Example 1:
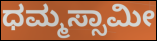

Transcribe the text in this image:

ಧಮ್ಮಸ್ಸಾಮೀ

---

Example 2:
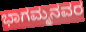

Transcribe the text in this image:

ಭಾಗಮ್ಮನವರ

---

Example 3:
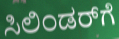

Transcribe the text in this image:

ಸಿಲಿಂಡರ್‌ಗೆ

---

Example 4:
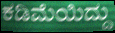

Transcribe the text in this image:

ಕಡಿಮೆಯಿದ್ದು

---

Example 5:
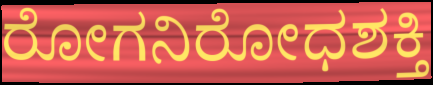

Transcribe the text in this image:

ರೋಗನಿರೋಧಶಕ್ತಿ